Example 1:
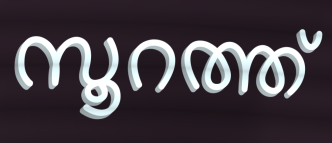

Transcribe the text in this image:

സൂറത്ത്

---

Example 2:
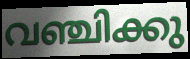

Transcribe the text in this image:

വഞ്ചിക്കു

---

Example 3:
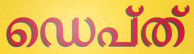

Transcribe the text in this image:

ഡെപ്ത്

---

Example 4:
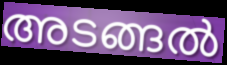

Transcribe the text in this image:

അടങ്ങൽ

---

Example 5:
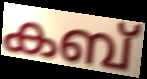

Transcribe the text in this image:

കബ്